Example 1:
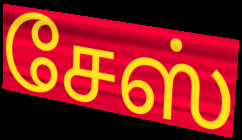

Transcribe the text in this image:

சேஸ்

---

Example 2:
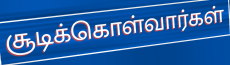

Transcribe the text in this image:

சூடிக்கொள்வார்கள்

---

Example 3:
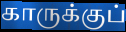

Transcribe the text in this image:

காருக்குப்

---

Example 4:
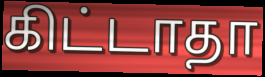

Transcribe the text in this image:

கிட்டாதா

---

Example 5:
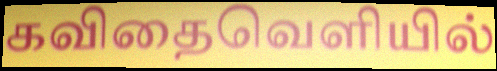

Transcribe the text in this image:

கவிதைவெளியில்